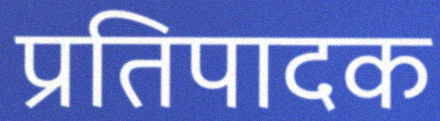
प्रतिपादक